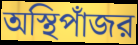
অস্থিপাঁজর